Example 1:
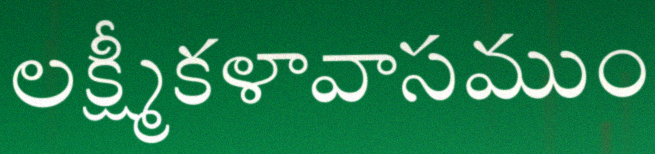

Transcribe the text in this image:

లక్ష్మీకళావాసముం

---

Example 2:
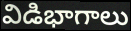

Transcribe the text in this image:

విడిభాగాలు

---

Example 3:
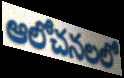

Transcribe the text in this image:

ఆలోచనలలో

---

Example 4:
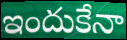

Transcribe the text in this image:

ఇందుకేనా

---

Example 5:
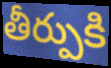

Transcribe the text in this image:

తీర్పుకి